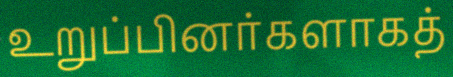
உறுப்பினர்களாகத்